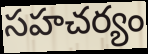
సహచర్యం